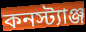
কনস্ট্যাঞ্জ